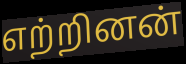
எற்றினன்